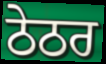
ਠੇਠਰ